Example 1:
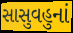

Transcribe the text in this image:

સાસુવહુનાં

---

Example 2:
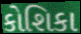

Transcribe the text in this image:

કોશિકા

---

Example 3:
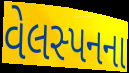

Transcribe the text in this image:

વેલસ્પનના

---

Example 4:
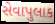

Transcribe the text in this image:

સેવાપુલાક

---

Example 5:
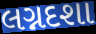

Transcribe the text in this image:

લગ્નદશા